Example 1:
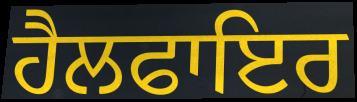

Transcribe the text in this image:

ਹੈਲਫਾਇਰ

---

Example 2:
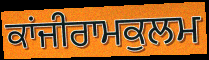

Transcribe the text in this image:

ਕਾਂਜੀਰਾਮਕੁਲਮ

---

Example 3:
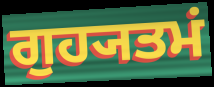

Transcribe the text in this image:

ਗੁਹ੍ਯਤਮਂ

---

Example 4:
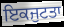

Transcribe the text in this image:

ਇਕਜੁਟਤਾ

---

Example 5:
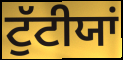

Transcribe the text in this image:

ਟੁੱਟੀਯਾਂ